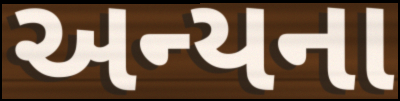
અન્યના